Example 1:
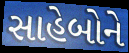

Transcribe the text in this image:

સાહેબોને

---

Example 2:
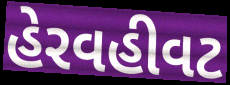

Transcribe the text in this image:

હેરવહીવટ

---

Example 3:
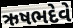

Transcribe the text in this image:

ઋષભદેવે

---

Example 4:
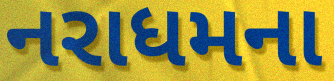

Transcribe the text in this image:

નરાધમના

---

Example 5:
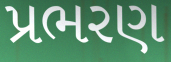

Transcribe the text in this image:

પ્રભરણ